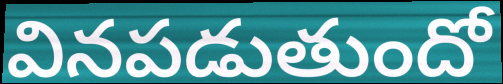
వినపడుతుందో